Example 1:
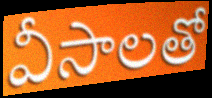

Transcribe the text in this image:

వీసాలతో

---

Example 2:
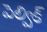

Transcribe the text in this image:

పెల్విక్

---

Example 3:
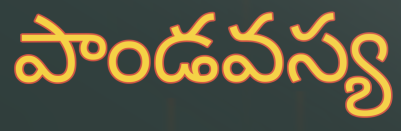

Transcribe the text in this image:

పాండవస్య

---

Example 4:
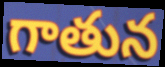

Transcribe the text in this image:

గాతున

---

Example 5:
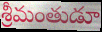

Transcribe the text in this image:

శ్రీమంతుడూ